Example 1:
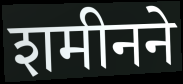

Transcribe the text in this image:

शमीनने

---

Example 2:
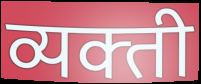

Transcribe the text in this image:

व्यक्‍ती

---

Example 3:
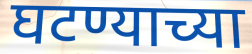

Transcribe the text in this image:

घटण्याच्या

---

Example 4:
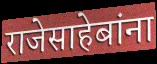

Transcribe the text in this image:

राजेसाहेबांना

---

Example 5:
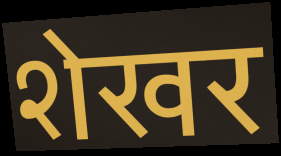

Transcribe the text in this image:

शेखर